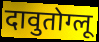
दावुतोग्लू